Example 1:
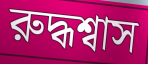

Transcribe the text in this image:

রুদ্ধশ্বাস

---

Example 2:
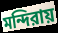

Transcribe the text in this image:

মন্দিরায়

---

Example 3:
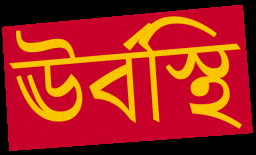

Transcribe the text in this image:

ঊর্বস্থি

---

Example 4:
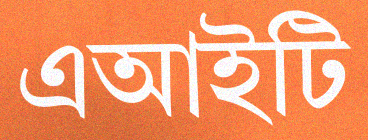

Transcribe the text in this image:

এআইটি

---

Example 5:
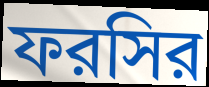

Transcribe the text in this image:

ফরসির